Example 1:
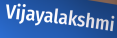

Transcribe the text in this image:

Vijayalakshmi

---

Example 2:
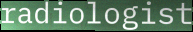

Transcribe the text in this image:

radiologist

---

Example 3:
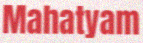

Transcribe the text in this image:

Mahatyam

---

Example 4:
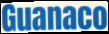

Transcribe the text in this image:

Guanaco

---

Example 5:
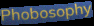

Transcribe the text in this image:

Phobosophy